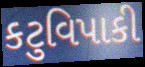
કટુવિપાકી